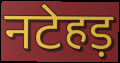
नटेहड़